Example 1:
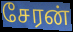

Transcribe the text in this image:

சேரன்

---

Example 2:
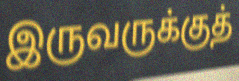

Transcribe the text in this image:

இருவருக்குத்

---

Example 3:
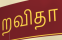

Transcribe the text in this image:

றவிதா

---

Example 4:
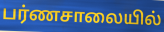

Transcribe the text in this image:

பர்ணசாலையில்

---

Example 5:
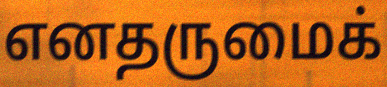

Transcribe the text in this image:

எனதருமைக்